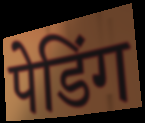
पेडिंग